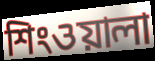
শিংওয়ালা